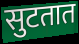
सुटतात